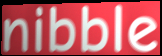
nibble